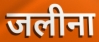
जलीना